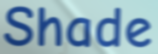
Shade